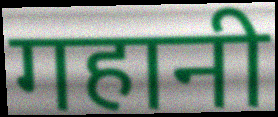
गहानी